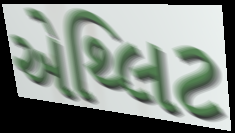
એથ્લિટ